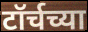
टॉर्चच्या